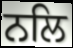
ਨਲਿ